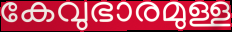
കേവുഭാരമുള്ള